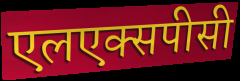
एलएक्सपीसी